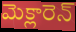
మెక్లారెన్